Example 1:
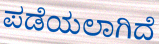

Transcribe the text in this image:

ಪಡೆಯಲಾಗಿದೆ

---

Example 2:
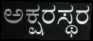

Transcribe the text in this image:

ಅಕ್ಷರಸ್ಥರ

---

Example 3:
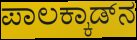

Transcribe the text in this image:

ಪಾಲಕ್ಕಾಡ್‌ನ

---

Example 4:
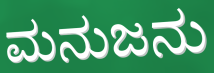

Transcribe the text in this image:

ಮನುಜನು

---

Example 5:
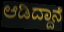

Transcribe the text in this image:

ಆಡಿದ್ದಾನೆ